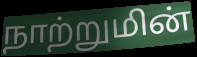
நாற்றுமின்